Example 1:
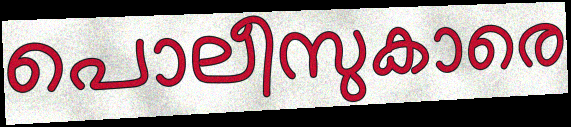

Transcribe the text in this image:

പൊലീസുകാരെ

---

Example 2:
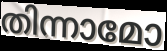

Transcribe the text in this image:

തിന്നാമോ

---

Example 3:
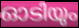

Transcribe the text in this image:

ഓടിയും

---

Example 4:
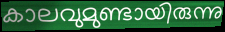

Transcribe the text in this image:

കാലവുമുണ്ടായിരുന്നു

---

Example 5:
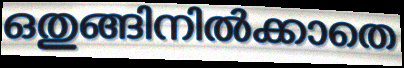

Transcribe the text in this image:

ഒതുങ്ങിനിൽക്കാതെ